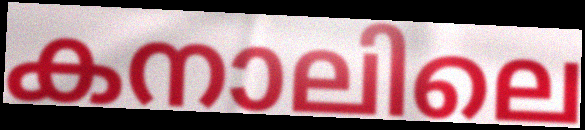
കനാലിലെ